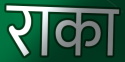
राका